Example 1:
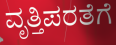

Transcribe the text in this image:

ವೃತ್ತಿಪರತೆಗೆ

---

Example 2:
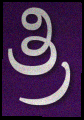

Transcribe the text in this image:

ತ್ರಿ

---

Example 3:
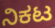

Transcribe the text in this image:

ನಿಕಟ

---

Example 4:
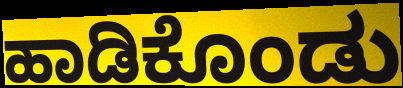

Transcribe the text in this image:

ಹಾಡಿಕೊಂಡು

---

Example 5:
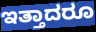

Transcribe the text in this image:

ಇತ್ತಾದರೂ